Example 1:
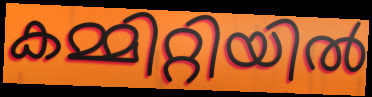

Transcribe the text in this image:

കമ്മിറ്റിയിൽ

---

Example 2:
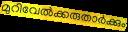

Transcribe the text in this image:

മുറിവേൽക്കരുതാർക്കും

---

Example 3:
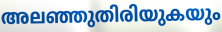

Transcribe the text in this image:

അലഞ്ഞുതിരിയുകയും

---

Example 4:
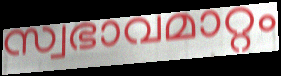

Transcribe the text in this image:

സ്വഭാവമാറ്റം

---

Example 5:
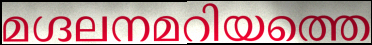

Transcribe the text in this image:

മഗ്ദലനമറിയത്തെ